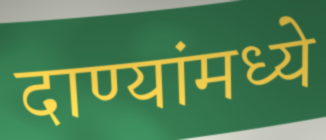
दाण्यांमध्ये